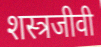
शस्त्रजीवी